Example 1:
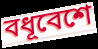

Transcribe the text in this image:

বধূবেশে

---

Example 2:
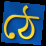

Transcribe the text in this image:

ঠে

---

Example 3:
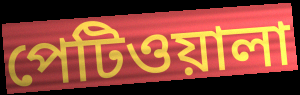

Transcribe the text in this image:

পেটিওয়ালা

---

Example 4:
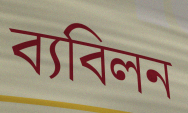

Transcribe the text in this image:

ব্যবিলন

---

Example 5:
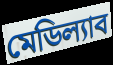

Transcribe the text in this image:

মেডিল্যাব